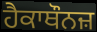
ਹੈਕਾਥੌਨਜ਼